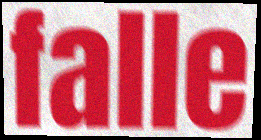
falle